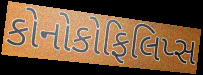
કોનોકોફિલિપ્સ